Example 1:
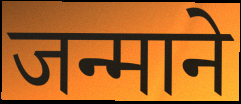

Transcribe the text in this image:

जन्माने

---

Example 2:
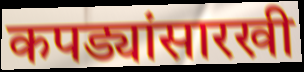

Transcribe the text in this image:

कपड्यांसारखी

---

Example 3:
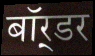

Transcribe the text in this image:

बॉर्डर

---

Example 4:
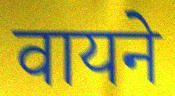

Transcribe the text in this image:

वायने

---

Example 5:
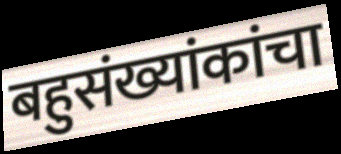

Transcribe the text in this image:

बहुसंख्यांकांचा